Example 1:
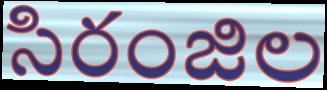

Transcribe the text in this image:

సిరంజిల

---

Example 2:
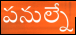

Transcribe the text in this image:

పనుల్నే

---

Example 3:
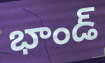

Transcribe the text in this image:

భాండ్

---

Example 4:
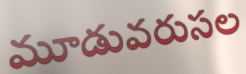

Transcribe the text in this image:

మూడువరుసల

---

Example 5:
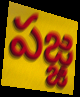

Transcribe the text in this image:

పజ్జ